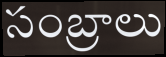
సంబ్రాలు